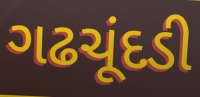
ગઢચૂંદડી